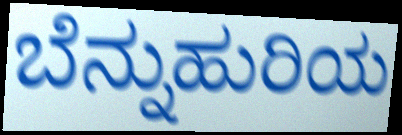
ಬೆನ್ನುಹುರಿಯ